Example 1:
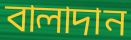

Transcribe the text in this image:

বালাদান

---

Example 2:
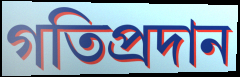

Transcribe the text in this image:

গতিপ্রদান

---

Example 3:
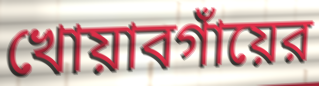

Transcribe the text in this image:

খোয়াবগাঁয়ের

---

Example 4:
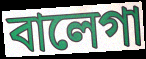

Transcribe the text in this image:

বালেগা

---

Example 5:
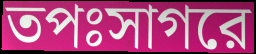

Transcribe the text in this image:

তপঃসাগরে